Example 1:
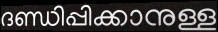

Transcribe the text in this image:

ദണ്ഡിപ്പിക്കാനുള്ള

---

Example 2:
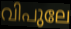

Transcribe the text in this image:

വിപുലേ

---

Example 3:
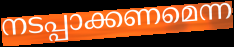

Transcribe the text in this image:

നടപ്പാക്കണമെന്ന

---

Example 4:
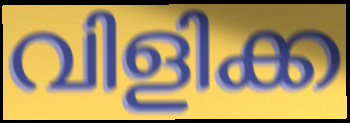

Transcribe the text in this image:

വിളിക്ക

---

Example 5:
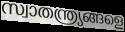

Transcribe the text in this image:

സ്വാതന്ത്ര്യങ്ങളെ